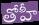
తోహీ